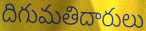
దిగుమతిదారులు